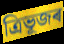
ত্ৰিভূজৰ